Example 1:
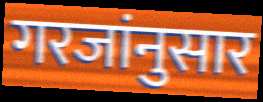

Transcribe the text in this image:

गरजांनुसार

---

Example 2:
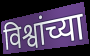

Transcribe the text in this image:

विश्वांच्या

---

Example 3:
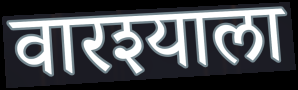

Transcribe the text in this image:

वारश्याला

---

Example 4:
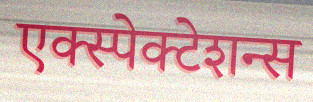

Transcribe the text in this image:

एक्स्पेक्टेशन्स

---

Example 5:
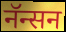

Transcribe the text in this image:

नॅन्सन